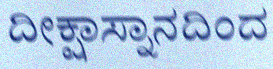
ದೀಕ್ಷಾಸ್ನಾನದಿಂದ